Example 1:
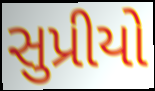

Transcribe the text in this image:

સુપ્રીયો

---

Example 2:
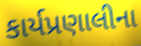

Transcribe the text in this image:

કાર્યપ્રણાલીના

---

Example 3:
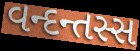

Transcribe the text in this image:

વન્દન્તસ્સ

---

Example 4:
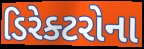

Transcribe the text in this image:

ડિરેક્ટરોના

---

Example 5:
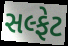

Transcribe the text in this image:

સલ્ફેટ